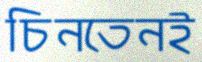
চিনতেনই